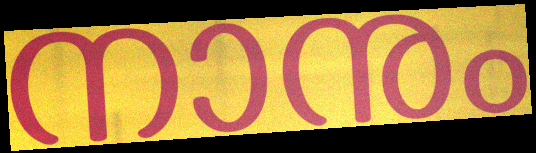
നാനും